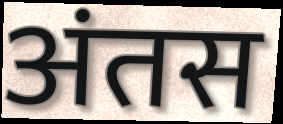
अंतस